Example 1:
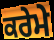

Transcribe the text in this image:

ਕਰੇਮੇ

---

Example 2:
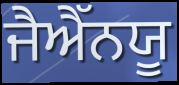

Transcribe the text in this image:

ਜੈਐੱਨਯੂ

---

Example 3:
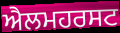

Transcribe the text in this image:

ਐਲਮਹਰਸਟ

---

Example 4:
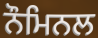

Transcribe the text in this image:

ਨੌਮਿਨਲ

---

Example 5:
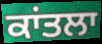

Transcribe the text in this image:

ਕਾਂਤਲਾ